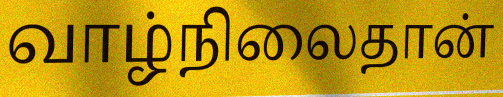
வாழ்நிலைதான்